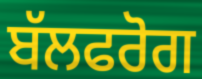
ਬੱਲਫਰੋਗ